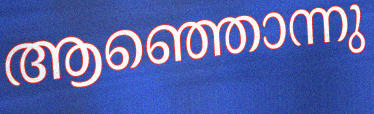
ആഞ്ഞൊന്നു